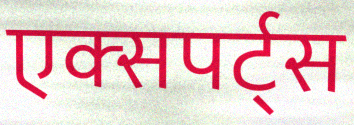
एक्‍सपर्ट्स